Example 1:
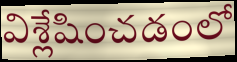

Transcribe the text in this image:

విశ్లేషించడంలో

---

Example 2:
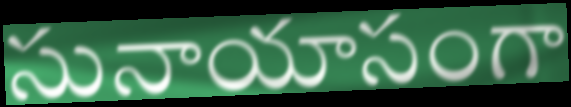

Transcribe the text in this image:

సునాయాసంగా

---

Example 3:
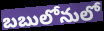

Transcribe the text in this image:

బబులోనులో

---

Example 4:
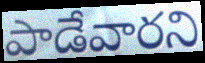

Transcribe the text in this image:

పాడేవారని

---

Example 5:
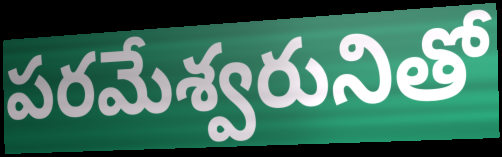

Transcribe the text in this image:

పరమేశ్వరునితో